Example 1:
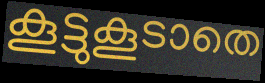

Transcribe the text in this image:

കൂട്ടുകൂടാതെ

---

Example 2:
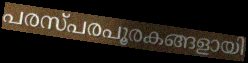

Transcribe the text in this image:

പരസ്പരപൂരകങ്ങളായി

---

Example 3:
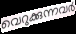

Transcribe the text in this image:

വെറുക്കുന്നവർ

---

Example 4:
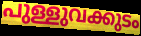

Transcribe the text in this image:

പുള്ളുവക്കുടം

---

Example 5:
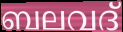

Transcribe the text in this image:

ബലവദ്